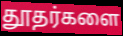
தூதர்களை